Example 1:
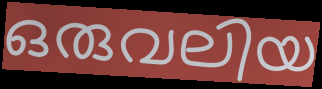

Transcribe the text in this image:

ഒരുവലിയ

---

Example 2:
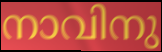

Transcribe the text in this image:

നാവിനു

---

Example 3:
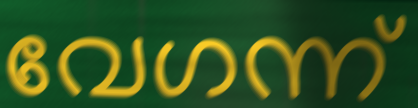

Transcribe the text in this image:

വേഗന്ന്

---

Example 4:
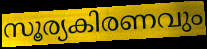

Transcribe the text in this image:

സൂര്യകിരണവും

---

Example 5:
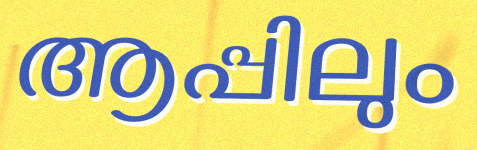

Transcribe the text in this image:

ആപ്പിലും